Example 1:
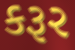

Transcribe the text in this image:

કરૂર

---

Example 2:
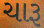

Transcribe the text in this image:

ચારૂ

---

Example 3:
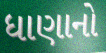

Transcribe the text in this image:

ધાણાનો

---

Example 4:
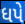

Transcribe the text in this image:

ધપે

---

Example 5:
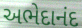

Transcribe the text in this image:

અભેદાનંદ